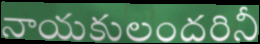
నాయకులందరినీ